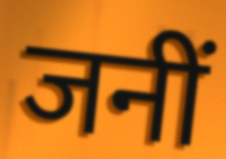
जनीं